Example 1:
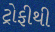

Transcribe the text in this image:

ટ્રોફીથી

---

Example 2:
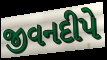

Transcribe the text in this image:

જીવનદીપે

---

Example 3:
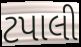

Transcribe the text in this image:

ટપાલી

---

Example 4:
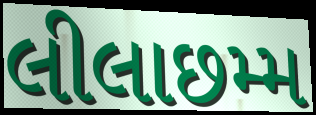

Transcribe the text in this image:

લીલાછમ્મ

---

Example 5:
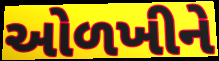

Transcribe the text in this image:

ઓળખીને